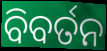
ବିବର୍ତନ